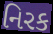
નિરક